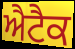
ਐਟੈਕ